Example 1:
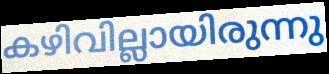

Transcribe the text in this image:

കഴിവില്ലായിരുന്നു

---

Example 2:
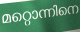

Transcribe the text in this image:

മറ്റൊന്നിനെ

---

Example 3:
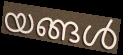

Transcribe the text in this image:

യങ്ങൾ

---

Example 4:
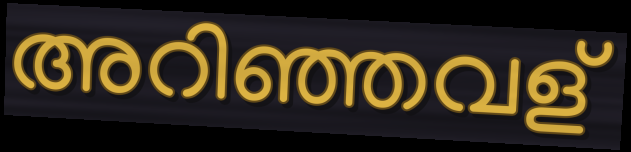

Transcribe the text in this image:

അറിഞ്ഞവള്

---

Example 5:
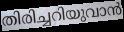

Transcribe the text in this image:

തിരിച്ചറിയുവാൻ